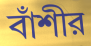
বাঁশীর